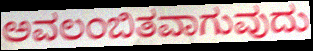
ಅವಲಂಬಿತವಾಗುವುದು